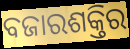
ବଜାରଶକ୍ତିର